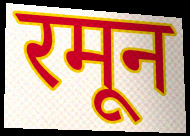
रमून